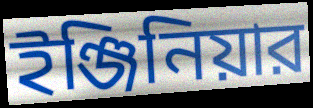
ইঞ্জিনিয়ার